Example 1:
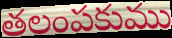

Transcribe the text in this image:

తలంపకుము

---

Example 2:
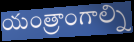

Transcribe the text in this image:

యంత్రాంగాల్ని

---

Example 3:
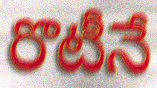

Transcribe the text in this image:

రొటీనే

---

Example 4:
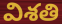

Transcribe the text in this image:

విశతి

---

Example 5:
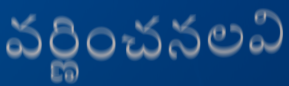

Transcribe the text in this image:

వర్ణించనలవి